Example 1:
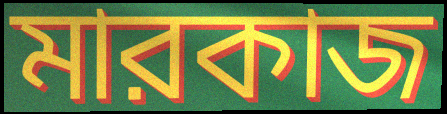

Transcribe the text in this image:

মারকাজ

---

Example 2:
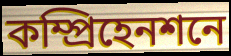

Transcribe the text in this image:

কম্প্রিহেনশনে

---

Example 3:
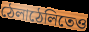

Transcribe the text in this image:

ঠেলাঠেলিতেও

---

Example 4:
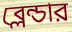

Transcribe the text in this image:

ব্লেন্ডার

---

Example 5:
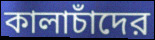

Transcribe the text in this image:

কালাচাঁদের